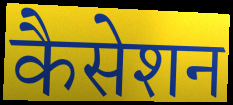
कैसेशन